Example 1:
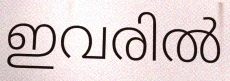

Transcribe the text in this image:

ഇവരിൽ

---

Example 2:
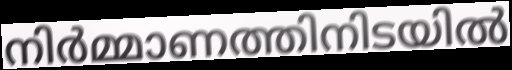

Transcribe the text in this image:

നിർമ്മാണത്തിനിടയിൽ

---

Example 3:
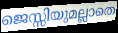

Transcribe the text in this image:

ജെസ്സിയുമല്ലാതെ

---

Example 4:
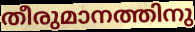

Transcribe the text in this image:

തീരുമാനത്തിനു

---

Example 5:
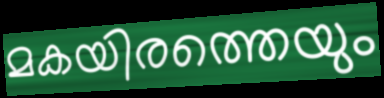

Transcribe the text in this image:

മകയിരത്തെയും